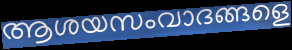
ആശയസംവാദങ്ങളെ